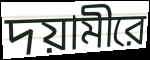
দয়ামীরে